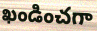
ఖండించగా